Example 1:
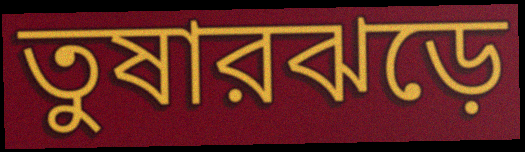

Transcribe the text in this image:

তুষারঝড়ে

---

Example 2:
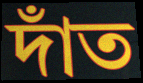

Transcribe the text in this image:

দাঁত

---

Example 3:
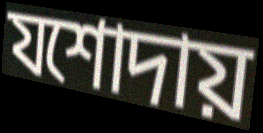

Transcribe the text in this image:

যশোদায়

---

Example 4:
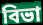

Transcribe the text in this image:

বিভা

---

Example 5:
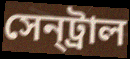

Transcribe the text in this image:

সেন্‌ট্রাল